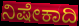
ನಿಷೇಕಾದಿ